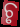
ଚୃ